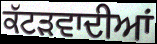
ਕੱਟੜਵਾਦੀਆਂ